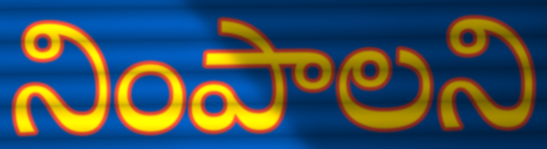
నింపాలని